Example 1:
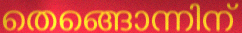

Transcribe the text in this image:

തെങ്ങൊന്നിന്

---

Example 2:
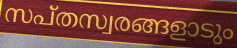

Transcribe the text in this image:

സപ്തസ്വരങ്ങളാടും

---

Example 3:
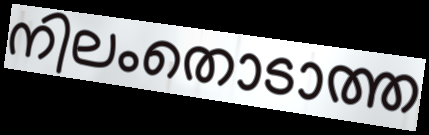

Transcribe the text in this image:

നിലംതൊടാത്ത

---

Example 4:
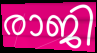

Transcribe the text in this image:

രാജി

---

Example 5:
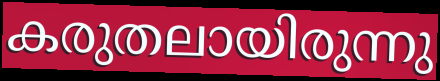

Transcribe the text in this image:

കരുതലായിരുന്നു